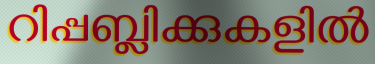
റിപ്പബ്ലിക്കുകളിൽ